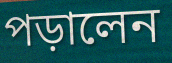
পড়ালেন